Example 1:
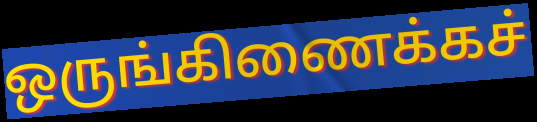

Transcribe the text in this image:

ஒருங்கிணைக்கச்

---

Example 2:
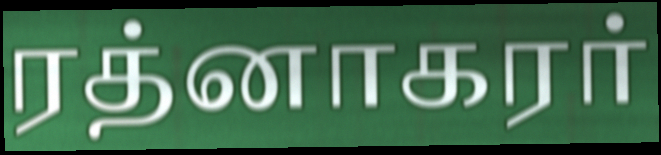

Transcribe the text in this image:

ரத்னாகரர்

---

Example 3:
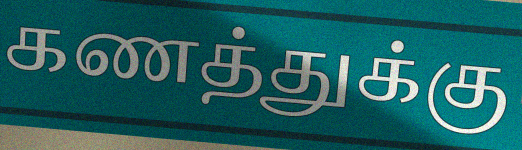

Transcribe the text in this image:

கணத்துக்கு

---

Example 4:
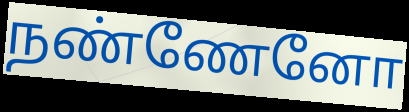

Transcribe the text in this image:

நண்ணேனோ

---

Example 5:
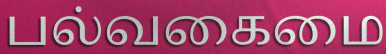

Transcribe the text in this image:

பல்வகைமை